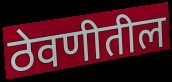
ठेवणीतील